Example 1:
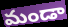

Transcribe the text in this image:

మండా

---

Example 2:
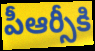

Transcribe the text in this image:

పీఆర్సీకి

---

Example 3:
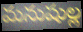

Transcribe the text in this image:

మనుషుల్ల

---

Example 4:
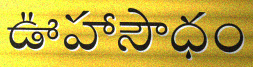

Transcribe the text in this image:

ఊహాసౌధం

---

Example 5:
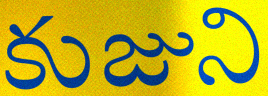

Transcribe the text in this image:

కుజుని